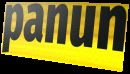
panun